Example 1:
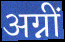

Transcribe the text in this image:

अग्नीं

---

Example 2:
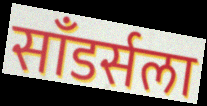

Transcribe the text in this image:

साँडर्सला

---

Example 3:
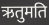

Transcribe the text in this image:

ऋतुमति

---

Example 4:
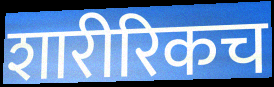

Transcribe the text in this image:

शारीरिकच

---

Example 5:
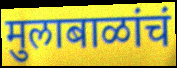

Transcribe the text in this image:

मुलाबाळांचं